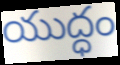
యుద్ధం